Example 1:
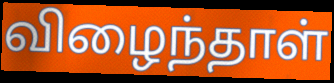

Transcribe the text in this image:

விழைந்தாள்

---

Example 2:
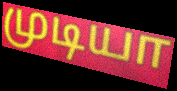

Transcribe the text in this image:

முடியா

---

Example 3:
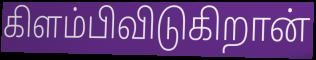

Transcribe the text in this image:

கிளம்பிவிடுகிறான்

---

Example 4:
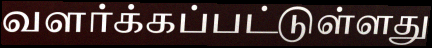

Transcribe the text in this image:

வளர்க்கப்பட்டுள்ளது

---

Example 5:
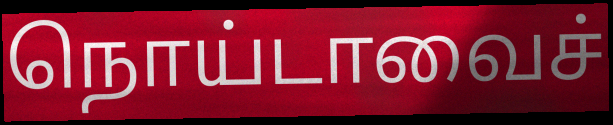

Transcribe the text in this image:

நொய்டாவைச்